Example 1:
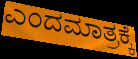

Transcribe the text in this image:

ಎಂದಮಾತ್ರಕ್ಕೆ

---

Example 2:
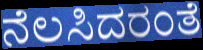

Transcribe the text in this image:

ನೆಲಸಿದರಂತೆ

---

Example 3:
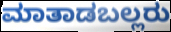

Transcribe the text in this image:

ಮಾತಾಡಬಲ್ಲರು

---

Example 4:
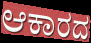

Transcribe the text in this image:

ಆಕಾರದ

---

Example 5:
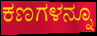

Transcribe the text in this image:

ಕಣಗಳನ್ನೂ